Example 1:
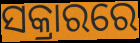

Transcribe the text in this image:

ସକ୍ରାରରେ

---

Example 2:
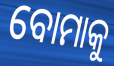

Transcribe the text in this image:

ବୋମାକୁ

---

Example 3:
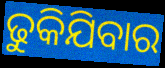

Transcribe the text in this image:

ଢୁକିଯିବାର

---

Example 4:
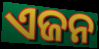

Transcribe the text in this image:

ଏଜନ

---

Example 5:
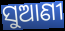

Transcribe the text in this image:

ସୁଆଣୀ